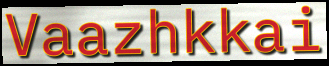
Vaazhkkai